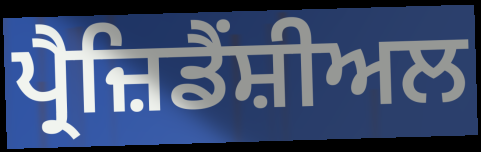
ਪ੍ਰੈਜ਼ਿਡੈਂਸ਼ੀਅਲ